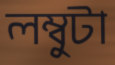
লম্বুটা